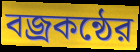
বজ্রকন্ঠের